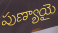
పుణ్యాయై